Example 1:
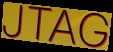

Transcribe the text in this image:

JTAG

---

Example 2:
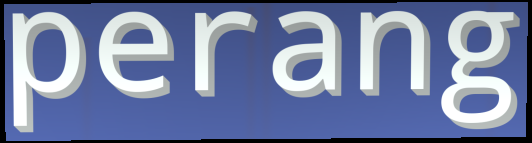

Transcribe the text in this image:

perang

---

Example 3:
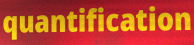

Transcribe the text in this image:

quantification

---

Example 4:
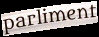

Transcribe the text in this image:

parliment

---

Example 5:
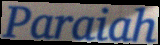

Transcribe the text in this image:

Paraiah